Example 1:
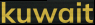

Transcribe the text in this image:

kuwait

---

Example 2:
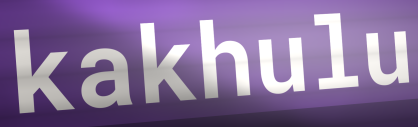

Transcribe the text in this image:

kakhulu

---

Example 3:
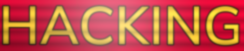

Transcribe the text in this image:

HACKING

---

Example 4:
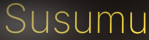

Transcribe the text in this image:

Susumu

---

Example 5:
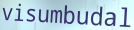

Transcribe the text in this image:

visumbudal